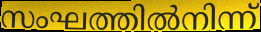
സംഘത്തിൽനിന്ന്